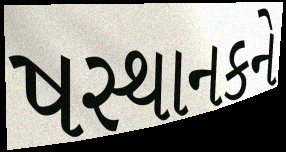
ષસ્થાનકને